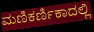
ಮಣಿಕರ್ಣಿಕಾದಲ್ಲಿ